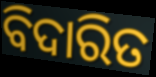
ବିଦାରିତ